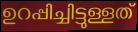
ഉറപ്പിച്ചിട്ടുള്ളത്